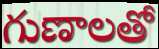
గుణాలతో